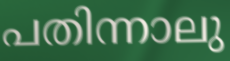
പതിന്നാലു